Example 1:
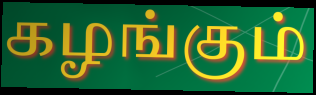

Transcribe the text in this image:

கழங்கும்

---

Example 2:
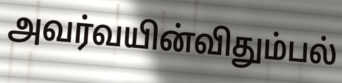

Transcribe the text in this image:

அவர்வயின்விதும்பல்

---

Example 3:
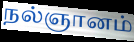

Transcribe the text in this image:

நல்ஞானம்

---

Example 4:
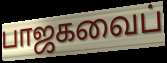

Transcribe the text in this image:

பாஜகவைப்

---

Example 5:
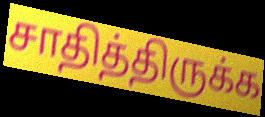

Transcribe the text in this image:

சாதித்திருக்க